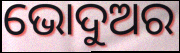
ଭୋଦୁଅର